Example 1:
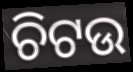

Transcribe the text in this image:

ଚିଟଉ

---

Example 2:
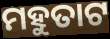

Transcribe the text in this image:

ମହୁତାଟ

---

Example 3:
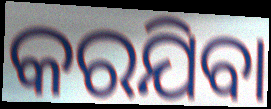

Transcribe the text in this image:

କରଯିବା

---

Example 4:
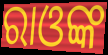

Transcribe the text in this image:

ରାଓଙ୍କ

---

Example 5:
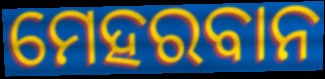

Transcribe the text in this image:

ମେହରବାନ